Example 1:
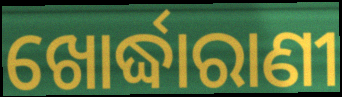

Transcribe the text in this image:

ଖୋର୍ଦ୍ଧାରାଣୀ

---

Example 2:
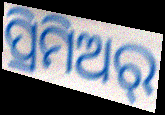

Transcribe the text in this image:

ପ୍ରିମିଅର୍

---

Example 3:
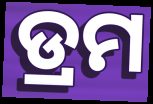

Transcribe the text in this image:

ଡ୍ରମ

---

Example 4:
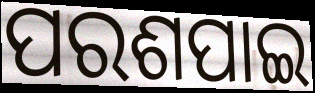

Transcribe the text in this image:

ପରଶପାଇ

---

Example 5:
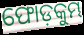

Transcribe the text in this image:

ଫୋଡ଼କୁମ୍ଭ